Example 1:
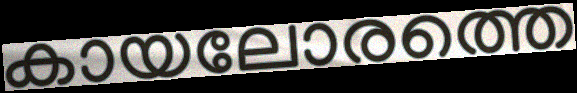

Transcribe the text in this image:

കായലോരത്തെ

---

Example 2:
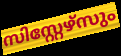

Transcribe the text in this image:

സിസ്റ്റേഴ്സും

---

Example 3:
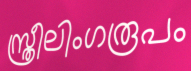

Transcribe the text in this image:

സ്ത്രീലിംഗരൂപം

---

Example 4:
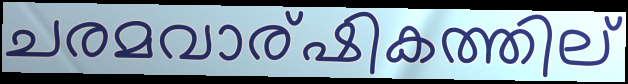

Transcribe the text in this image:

ചരമവാര്ഷികത്തില്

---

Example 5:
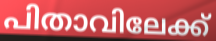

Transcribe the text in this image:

പിതാവിലേക്ക്